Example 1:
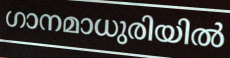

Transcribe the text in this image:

ഗാനമാധുരിയിൽ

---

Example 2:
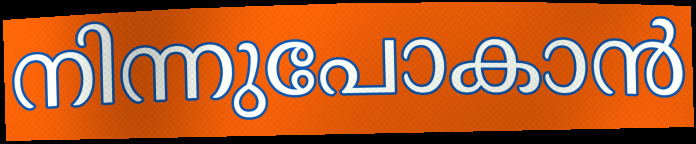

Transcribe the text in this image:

നിന്നുപോകാൻ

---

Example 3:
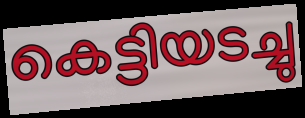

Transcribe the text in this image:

കെട്ടിയടച്ചു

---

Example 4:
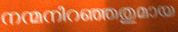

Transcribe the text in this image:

നന്മനിറഞ്ഞതുമായ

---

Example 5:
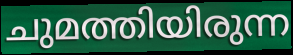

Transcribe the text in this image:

ചുമത്തിയിരുന്ന